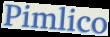
Pimlico